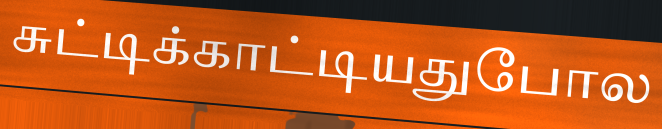
சுட்டிக்காட்டியதுபோல